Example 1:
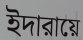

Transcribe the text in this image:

ইদারায়ে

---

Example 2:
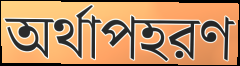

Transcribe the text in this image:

অর্থাপহরণ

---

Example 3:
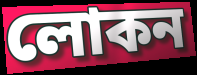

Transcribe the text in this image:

লোকন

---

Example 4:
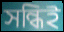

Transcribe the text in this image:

সন্ধিই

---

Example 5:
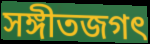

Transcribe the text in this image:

সঙ্গীতজগৎ